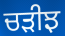
ਚੜੀਝ